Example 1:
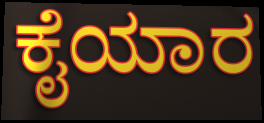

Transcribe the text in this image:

ಕೈಯಾರ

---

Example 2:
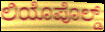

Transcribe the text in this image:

ಲಿಯೊಪೊಲ್ಡ್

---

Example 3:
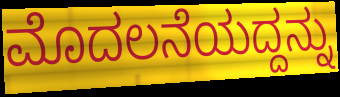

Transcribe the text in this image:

ಮೊದಲನೆಯದ್ದನ್ನು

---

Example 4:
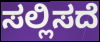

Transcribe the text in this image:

ಸಲ್ಲಿಸದೆ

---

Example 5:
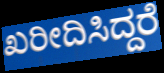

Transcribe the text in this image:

ಖರೀದಿಸಿದ್ದರೆ